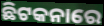
ଛିଟକନାରେ